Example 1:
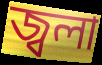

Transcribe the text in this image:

জ্বলা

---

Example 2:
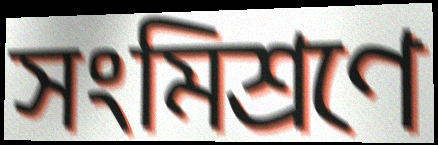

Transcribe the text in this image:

সংমিশ্ৰণে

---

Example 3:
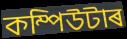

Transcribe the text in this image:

কম্পিউটাৰ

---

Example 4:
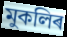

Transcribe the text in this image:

মুকলিৰ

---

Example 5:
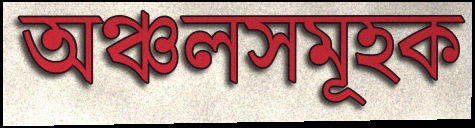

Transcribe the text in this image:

অঞ্চলসমূহক